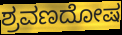
ಶ್ರವಣದೋಷ